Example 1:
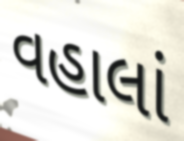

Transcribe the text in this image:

વહાલાં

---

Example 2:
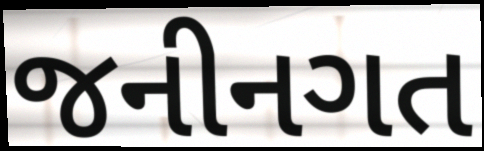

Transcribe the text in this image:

જનીનગત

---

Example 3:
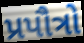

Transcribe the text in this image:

પ્રપૌત્રો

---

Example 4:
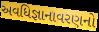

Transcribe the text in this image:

અવધિજ્ઞાનાવરણનો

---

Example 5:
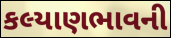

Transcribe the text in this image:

કલ્યાણભાવની